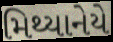
મિથ્યાનેયે